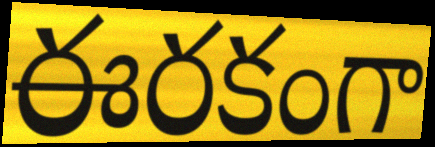
ఈరకంగా